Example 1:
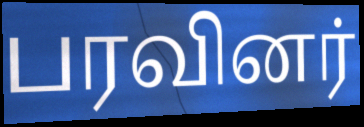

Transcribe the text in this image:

பரவினர்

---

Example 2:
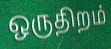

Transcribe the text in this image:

ஒருதிறம்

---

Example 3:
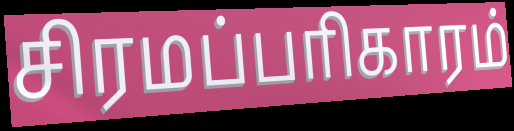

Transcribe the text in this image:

சிரமப்பரிகாரம்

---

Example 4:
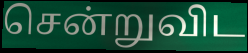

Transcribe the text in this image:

சென்றுவிட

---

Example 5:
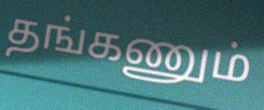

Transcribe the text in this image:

தங்கணும்